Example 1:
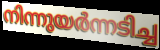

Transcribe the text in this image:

നിന്നുയർന്നടിച്ച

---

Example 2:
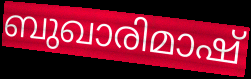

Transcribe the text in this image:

ബുഖാരിമാഷ്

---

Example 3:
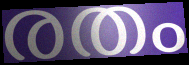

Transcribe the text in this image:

രതം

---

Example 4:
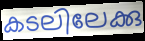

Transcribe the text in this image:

കടലിലേക്കു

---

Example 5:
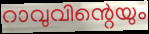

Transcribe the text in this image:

റാവുവിന്റെയും